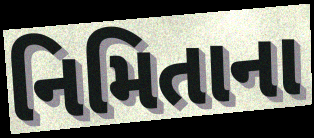
નિમિતાના